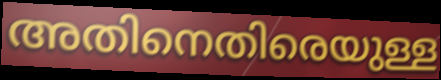
അതിനെതിരെയുള്ള